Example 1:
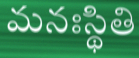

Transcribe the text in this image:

మనఃస్థితి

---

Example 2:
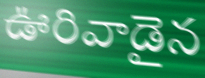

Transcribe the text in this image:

ఊరివాడైన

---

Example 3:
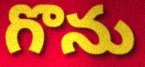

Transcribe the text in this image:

గొను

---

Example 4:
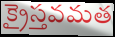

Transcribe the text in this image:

క్రైస్తవమత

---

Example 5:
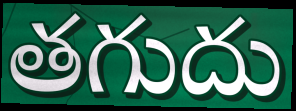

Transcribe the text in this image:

తగుదు